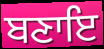
ਬਣਾਇ